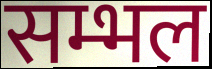
सम्भल